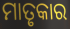
ମାତୃକାର